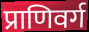
प्राणिवर्ग